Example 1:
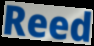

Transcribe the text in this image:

Reed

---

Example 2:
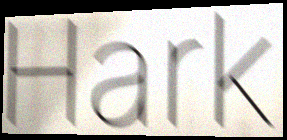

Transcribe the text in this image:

Hark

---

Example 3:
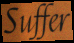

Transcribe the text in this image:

Suffer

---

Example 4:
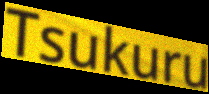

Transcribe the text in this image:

Tsukuru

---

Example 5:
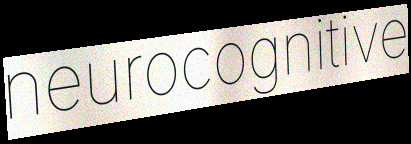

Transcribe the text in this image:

neurocognitive